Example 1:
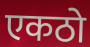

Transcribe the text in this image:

एकठो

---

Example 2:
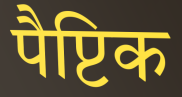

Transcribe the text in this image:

पैप्टिक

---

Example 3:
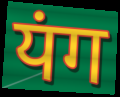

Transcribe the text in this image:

यंग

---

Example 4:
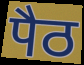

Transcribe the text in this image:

पैठ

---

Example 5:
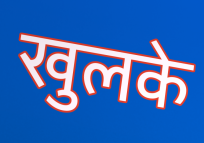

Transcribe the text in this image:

खुलके